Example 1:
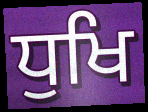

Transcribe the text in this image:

ਧੁਖਿ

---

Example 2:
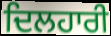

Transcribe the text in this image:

ਦਿਲਹਾਰੀ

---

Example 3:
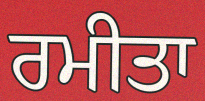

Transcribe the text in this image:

ਰਮੀਤਾ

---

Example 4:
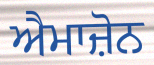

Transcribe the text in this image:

ਐਮਾਜ਼ੋਨ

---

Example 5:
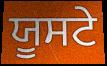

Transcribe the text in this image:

ਯੂਸਟੇ